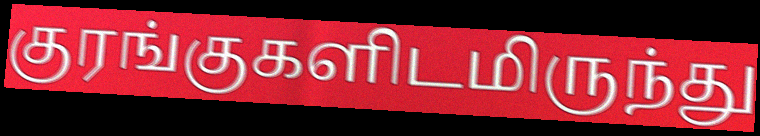
குரங்குகளிடமிருந்து